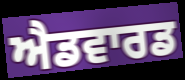
ਐਡਵਾਰਡ